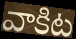
వాకిట